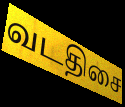
வடதிசை